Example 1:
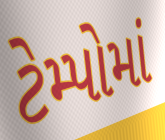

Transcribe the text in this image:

ટેમ્પોમાં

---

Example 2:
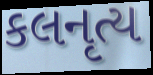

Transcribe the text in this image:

કલનૃત્ય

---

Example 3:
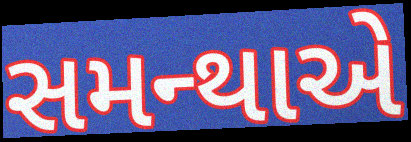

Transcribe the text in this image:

સમન્થાએ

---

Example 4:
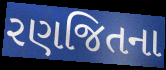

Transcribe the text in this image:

રણજિતના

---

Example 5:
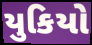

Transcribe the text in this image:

યુકિયો